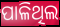
ପାଳିଥିଲ